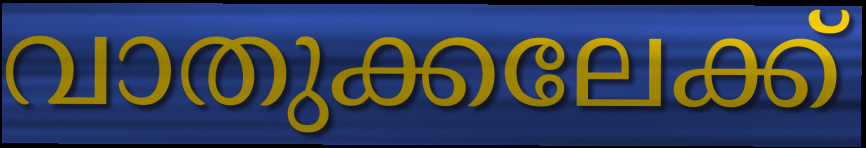
വാതുക്കലേക്ക്